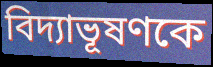
বিদ্যাভূষণকে